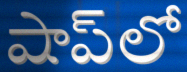
షాప్‌లో